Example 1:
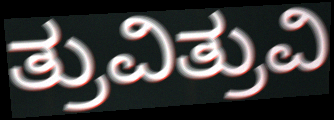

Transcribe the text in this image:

ತ್ರುವಿತ್ರುವಿ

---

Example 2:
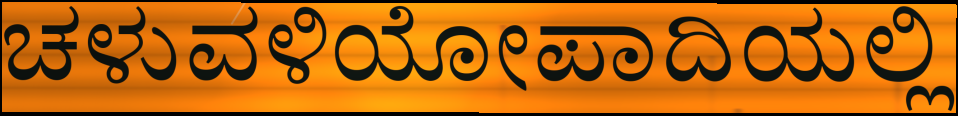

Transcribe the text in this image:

ಚಳುವಳಿಯೋಪಾದಿಯಲ್ಲಿ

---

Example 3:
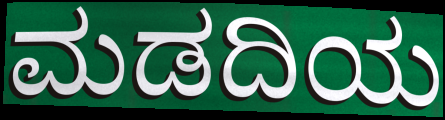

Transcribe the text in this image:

ಮಡದಿಯ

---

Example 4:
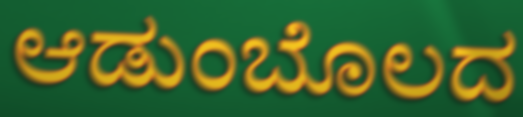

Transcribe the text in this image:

ಆಡುಂಬೊಲದ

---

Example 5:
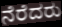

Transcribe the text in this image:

ನೆರೆದರು